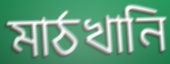
মাঠখানি